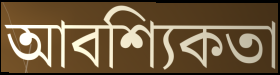
আবশ্যিকতা